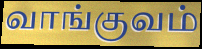
வாங்குவம்